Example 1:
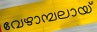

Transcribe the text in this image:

വേഴാമ്പലായ്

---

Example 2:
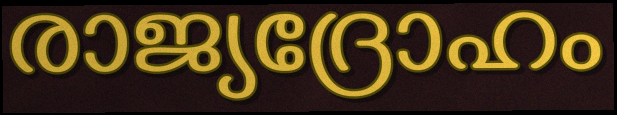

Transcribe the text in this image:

രാജ്യദ്രോഹം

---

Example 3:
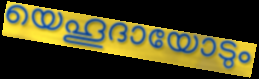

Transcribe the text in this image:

യെഹൂദായോടും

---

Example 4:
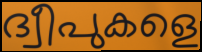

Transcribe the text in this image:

ദ്വീപുകളെ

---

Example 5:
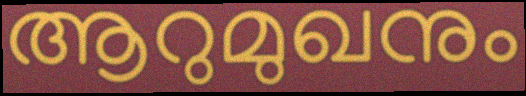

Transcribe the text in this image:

ആറുമുഖനും